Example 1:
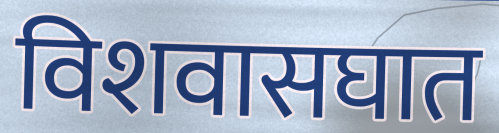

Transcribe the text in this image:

विशवासघात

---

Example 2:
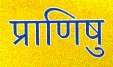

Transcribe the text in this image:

प्राणिषु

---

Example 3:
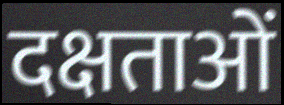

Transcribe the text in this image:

दक्षताओं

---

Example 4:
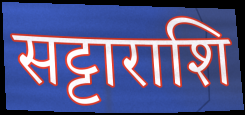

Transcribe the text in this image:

सट्टाराशि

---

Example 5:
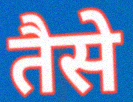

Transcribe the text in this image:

तैसे